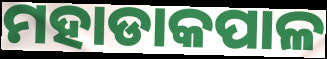
ମହାଡାକପାଳ